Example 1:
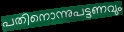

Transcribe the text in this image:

പതിനൊന്നുപട്ടണവും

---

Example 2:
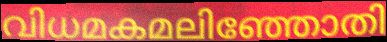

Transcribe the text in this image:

വിധമകമലിഞ്ഞോതി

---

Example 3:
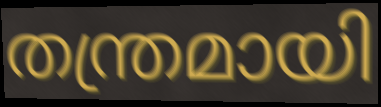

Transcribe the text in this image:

തന്ത്രമായി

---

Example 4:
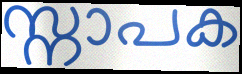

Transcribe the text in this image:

സ്നാപക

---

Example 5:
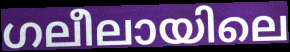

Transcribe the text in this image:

ഗലീലായിലെ